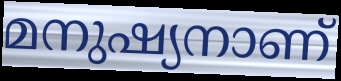
മനുഷ്യനാണ്